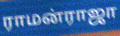
ராமன்ராஜா